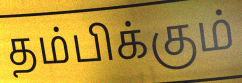
தம்பிக்கும்